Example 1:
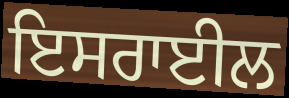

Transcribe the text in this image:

ਇਸਰਾਈਲ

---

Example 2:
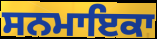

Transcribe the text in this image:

ਸਨਮਾਇਕਾ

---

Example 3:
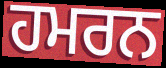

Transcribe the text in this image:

ਹਮਰਨ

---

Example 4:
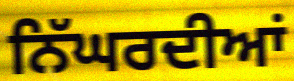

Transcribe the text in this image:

ਨਿੱਘਰਦੀਆਂ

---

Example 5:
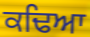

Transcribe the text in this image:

ਕਢਿਆ